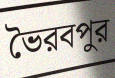
ভৈরবপুর